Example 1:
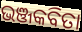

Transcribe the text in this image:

ଭଞ୍ଜକବିତା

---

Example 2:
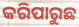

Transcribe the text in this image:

କରିପାରୁଛ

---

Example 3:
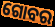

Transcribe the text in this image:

ଗୋବର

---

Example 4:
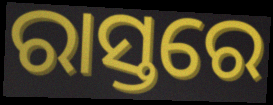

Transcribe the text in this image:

ରାସ୍ତରେ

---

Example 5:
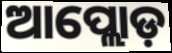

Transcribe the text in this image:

ଆପ୍ଲୋଡ଼